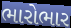
ભારોભાર